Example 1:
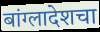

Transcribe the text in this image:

बांग्लादेशचा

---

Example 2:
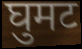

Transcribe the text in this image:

घुमट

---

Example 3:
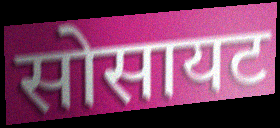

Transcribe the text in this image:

सोसायट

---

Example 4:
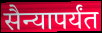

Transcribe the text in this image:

सैन्यापर्यंत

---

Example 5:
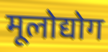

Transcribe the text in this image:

मूलोद्योग